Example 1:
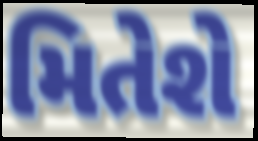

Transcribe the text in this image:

મિતેશે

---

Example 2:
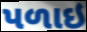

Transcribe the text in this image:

પળાઇ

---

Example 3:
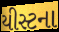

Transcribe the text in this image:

યીસ્ટના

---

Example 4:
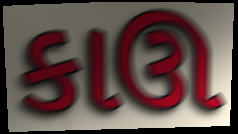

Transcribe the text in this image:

કાઊ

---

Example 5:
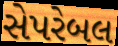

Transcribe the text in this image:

સેપરેબલ